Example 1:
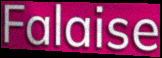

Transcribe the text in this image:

Falaise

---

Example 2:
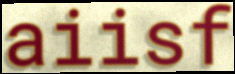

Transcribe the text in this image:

aiisf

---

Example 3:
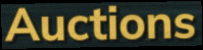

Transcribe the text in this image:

Auctions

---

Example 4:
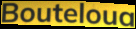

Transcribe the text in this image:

Bouteloua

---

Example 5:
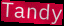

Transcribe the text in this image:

Tandy